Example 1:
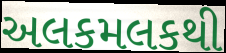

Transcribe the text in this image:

અલકમલકથી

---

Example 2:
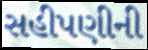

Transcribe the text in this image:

સહીપણીની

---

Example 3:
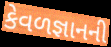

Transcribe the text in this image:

કેવળજ્ઞાનની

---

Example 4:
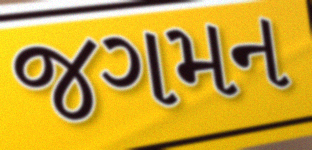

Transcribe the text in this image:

જગમન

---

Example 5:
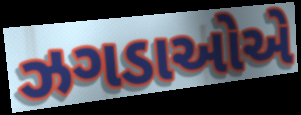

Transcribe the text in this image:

ઝગડાઓએ